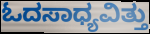
ಓದಸಾಧ್ಯವಿತ್ತು